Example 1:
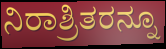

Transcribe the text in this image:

ನಿರಾಶ್ರಿತರನ್ನೂ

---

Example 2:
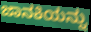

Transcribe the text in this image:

ಜಾನಕಿಯನ್ನು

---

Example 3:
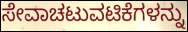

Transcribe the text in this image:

ಸೇವಾಚಟುವಟಿಕೆಗಳನ್ನು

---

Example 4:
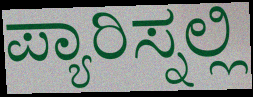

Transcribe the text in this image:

ಪ್ಯಾರಿಸ್ನಲ್ಲಿ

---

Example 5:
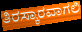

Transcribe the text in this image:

ತಿರಸ್ಕಾರವಾಗಲಿ